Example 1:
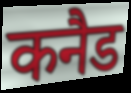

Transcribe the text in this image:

कनैड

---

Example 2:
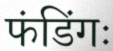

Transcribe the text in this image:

फंडिंगः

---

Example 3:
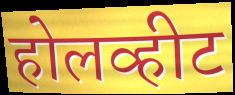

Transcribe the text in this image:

होलव्हीट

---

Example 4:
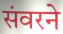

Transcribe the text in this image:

संवरने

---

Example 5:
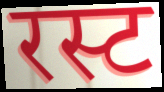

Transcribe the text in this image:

रस्ट